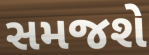
સમજશે